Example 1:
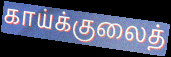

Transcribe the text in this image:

காய்க்குலைத்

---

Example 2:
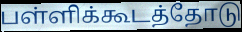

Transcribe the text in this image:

பள்ளிக்கூடத்தோடு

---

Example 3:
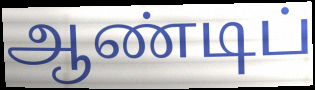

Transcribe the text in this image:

ஆண்டிப்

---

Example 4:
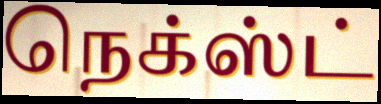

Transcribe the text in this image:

நெக்ஸ்ட்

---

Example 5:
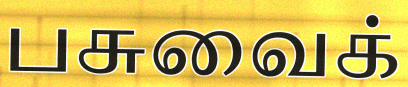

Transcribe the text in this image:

பசுவைக்